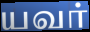
யவர்